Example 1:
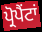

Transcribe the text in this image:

ਪ੍ਰੋਪੈਂਟਾਂ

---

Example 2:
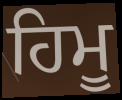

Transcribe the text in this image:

ਹਿਮੂ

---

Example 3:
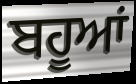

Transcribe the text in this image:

ਬਹੂਆਂ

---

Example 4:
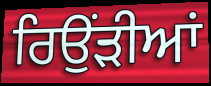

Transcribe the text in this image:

ਰਿਉਂੜੀਆਂ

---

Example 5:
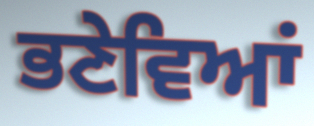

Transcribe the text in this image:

ਭਣੇਵਿਆਂ